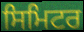
ਸਿਮਿਟਰ